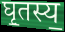
घृ॒तस्य॒